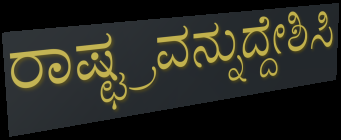
ರಾಷ್ಟ್ರವನ್ನುದ್ದೇಶಿಸಿ